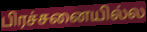
பிரச்சனையில்ல